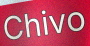
Chivo